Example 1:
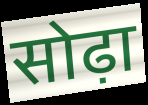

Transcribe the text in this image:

सोढ़ा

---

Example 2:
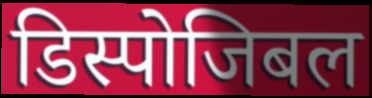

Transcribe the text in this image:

डिस्पोजिबल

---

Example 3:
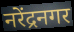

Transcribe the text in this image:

नरेंद्रनगर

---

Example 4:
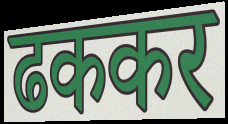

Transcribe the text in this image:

ढककर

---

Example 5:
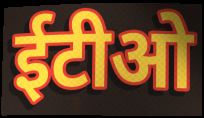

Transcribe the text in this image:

ईटीओ